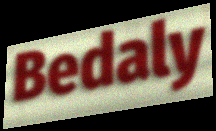
Bedaly